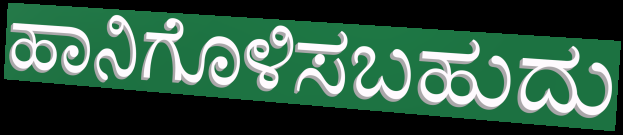
ಹಾನಿಗೊಳಿಸಬಹುದು